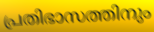
പ്രതിഭാസത്തിനും